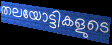
തലയോട്ടികളുടെ